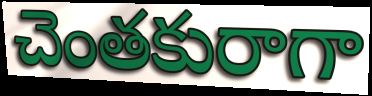
చెంతకురాగా